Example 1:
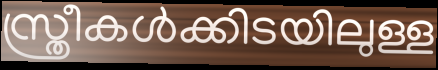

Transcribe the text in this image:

സ്ത്രീകൾക്കിടയിലുള്ള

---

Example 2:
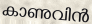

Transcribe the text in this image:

കാണുവിൻ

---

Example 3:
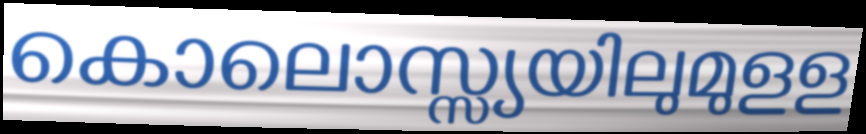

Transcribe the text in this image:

കൊലൊസ്സ്യയിലുമുളള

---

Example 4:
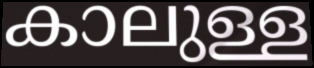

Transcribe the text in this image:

കാലുള്ള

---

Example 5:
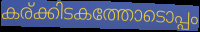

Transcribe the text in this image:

കര്ക്കിടകത്തോടൊപ്പം